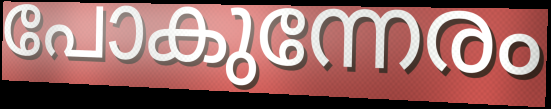
പോകുന്നേരം